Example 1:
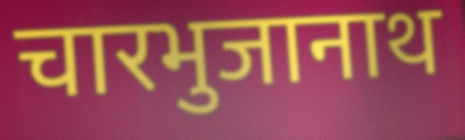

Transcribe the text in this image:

चारभुजानाथ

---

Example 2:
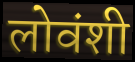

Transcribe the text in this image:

लोवंशी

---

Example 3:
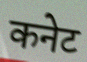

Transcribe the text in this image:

कनेट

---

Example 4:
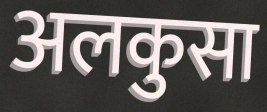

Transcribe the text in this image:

अलकुसा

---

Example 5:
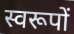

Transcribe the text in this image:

स्वरूपों